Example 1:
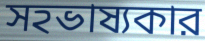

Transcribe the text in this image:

সহভাষ্যকার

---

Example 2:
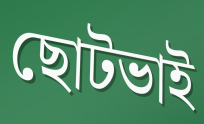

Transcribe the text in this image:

ছোটভাই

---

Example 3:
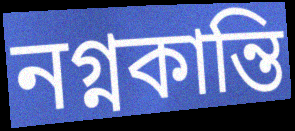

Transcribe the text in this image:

নগ্নকান্তি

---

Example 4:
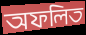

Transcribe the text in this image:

অফলিত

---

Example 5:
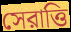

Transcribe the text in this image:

সেরাত্তি